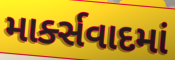
માર્ક્સવાદમાં